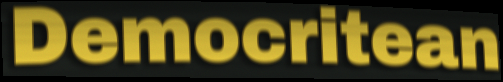
Democritean